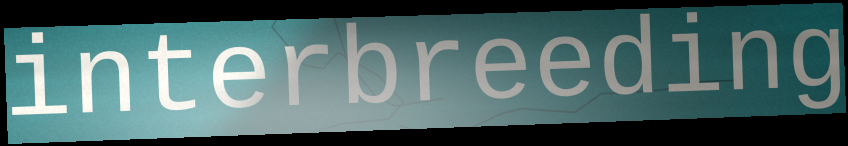
interbreeding